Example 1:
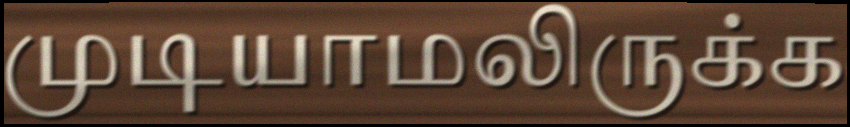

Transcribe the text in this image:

முடியாமலிருக்க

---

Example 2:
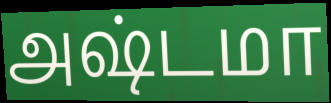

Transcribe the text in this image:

அஷ்டமா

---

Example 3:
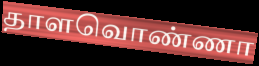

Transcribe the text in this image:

தாளவொண்ணா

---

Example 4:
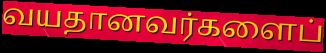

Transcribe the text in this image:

வயதானவர்களைப்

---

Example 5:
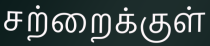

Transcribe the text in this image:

சற்றைக்குள்